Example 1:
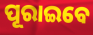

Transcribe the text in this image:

ପୂରାଇବେ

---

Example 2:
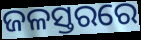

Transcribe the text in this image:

ଜଳସ୍ତରରେ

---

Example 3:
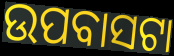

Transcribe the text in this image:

ଉପବାସଟା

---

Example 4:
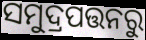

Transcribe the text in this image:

ସମୁଦ୍ରପତ୍ତନରୁ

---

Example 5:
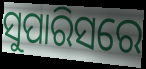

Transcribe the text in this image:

ସୁପାରିସରେ